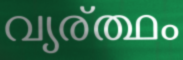
വ്യര്ത്ഥം